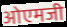
ओएमजी